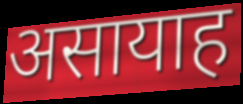
असायाह